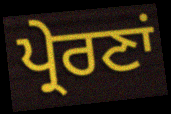
ਪ੍ਰੇਰਣਾਂ